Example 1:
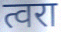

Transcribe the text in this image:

त्वरा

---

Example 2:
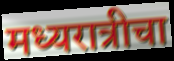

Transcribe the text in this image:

मध्यरात्रीचा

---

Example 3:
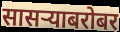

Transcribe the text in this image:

सासऱ्याबरोबर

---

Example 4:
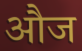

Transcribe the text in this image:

औज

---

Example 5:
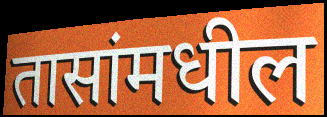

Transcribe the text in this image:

तासांमधील